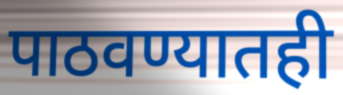
पाठवण्यातही